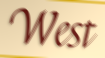
West